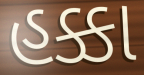
હક્કા